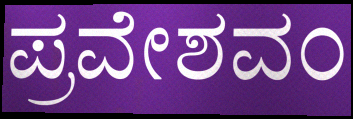
ಪ್ರವೇಶವಂ